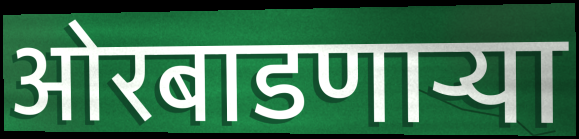
ओरबाडणाऱ्या